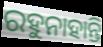
ରହୁନାହାନ୍ତି